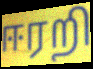
ஈரறி